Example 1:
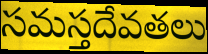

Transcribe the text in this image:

సమస్తదేవతలు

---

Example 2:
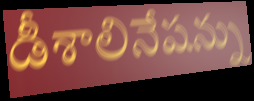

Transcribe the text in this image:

డీశాలినేషన్ను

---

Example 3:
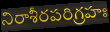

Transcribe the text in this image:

నిరాశీరపరిగ్రహః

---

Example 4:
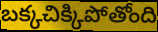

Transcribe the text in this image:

బక్కచిక్కిపోతోంది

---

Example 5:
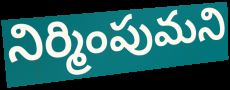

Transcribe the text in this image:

నిర్మింపుమని